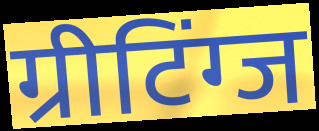
ग्रीटिंग्ज